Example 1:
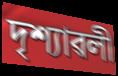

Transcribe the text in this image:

দৃশ্যাৱলী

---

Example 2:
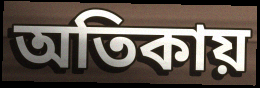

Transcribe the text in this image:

অতিকায়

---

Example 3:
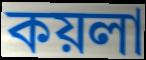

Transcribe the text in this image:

কয়লা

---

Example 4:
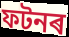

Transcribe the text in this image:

ফটনৰ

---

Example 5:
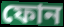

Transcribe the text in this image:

ফোন